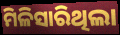
ମିଳିସାରିଥିଲା